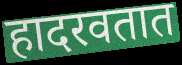
हादरवतात